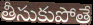
తీసుకుపోతే